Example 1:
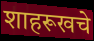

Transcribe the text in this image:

शाहरूखचे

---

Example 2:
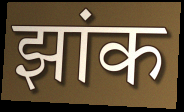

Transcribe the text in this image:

झांक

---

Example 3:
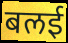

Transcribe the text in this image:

बलई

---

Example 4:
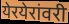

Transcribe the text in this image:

येरयेरांवरी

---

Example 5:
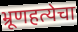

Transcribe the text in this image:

भ्रूणहत्येचा